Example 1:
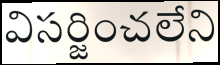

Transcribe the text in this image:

విసర్జించలేని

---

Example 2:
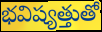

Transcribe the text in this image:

భవిష్యత్తుతో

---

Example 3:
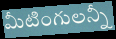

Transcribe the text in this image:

మీటింగులన్నీ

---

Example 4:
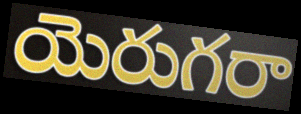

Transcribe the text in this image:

యెరుగరా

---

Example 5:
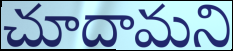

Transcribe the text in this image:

చూదామని